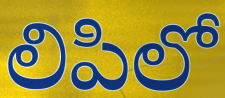
లిపిలో